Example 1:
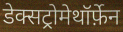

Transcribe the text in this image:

डेक्सट्रोमेथॉर्फ़ेन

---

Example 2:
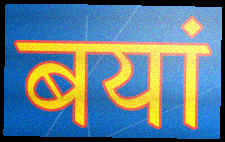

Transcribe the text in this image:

बयां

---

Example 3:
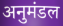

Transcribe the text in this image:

अनुमंडल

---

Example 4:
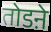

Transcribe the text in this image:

तोडऩे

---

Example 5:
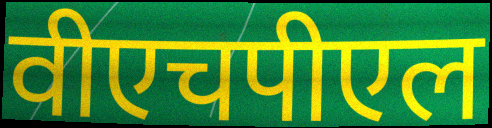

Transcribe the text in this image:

वीएचपीएल